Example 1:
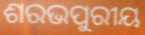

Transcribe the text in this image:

ଶରଭପୁରୀୟ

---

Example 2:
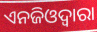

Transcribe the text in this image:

ଏନଜିଓଦ୍ୱାରା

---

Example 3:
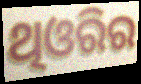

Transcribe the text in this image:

ଥିଓରିର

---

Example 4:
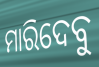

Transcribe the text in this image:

ମାରିଦେବୁ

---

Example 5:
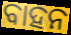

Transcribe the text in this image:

ବାହନ